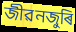
জীৱনজুৰি